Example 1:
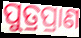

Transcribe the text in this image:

ପୁତ୍ରପ୍ରାଣ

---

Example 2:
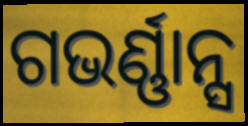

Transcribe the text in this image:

ଗଭର୍ଣ୍ଣାନ୍ସ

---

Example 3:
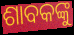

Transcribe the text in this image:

ଶାବକଙ୍କୁ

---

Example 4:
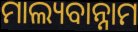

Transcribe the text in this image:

ମାଲ୍ୟବାନ୍ନାମ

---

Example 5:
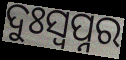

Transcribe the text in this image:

ଦୁଃସ୍ବପ୍ନର